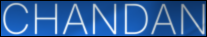
CHANDAN